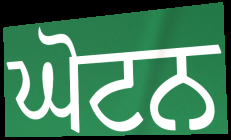
ਘੋਟਨ